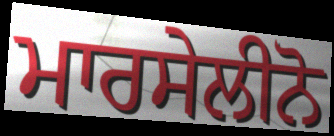
ਮਾਰਸੇਲੀਨੋ